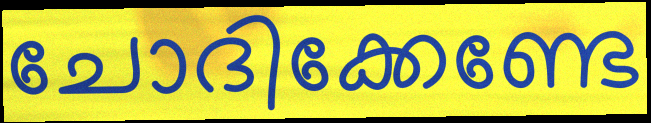
ചോദിക്കേണ്ടേ